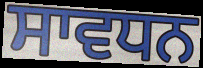
ਸਾਵਧਨ